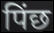
पिंछ